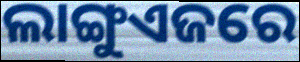
ଲାଙ୍ଗୁଏଜରେ